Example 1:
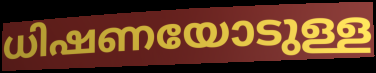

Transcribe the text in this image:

ധിഷണയോടുള്ള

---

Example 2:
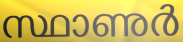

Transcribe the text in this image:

സ്ഥാണുർ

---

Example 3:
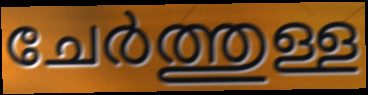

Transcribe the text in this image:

ചേർത്തുള്ള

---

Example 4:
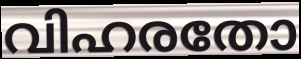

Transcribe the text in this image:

വിഹരതോ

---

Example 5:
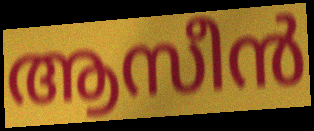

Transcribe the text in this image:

ആസീൻ